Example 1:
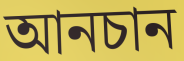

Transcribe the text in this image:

আনচান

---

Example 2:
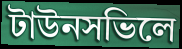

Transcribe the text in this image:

টাউনসভিলে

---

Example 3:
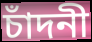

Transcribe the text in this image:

চাঁদনী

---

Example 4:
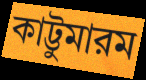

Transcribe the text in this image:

কাট্টুমারম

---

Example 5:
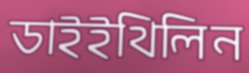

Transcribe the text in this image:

ডাইইথিলিন